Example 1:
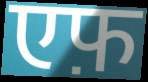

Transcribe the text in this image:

एफ़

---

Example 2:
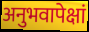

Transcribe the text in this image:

अनुभवापेक्षां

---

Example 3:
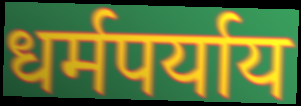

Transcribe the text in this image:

धर्मपर्याय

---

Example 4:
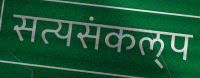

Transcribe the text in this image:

सत्यसंकल्प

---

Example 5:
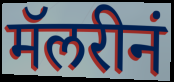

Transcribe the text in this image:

मॅलरीनं